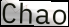
Chao